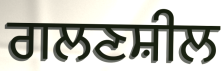
ਗਲਣਸ਼ੀਲ